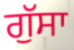
ਗੁੱਸਾ